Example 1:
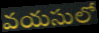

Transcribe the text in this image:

వయసులో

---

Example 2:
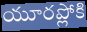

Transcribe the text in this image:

యూరప్లోకి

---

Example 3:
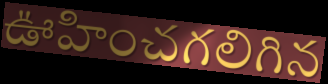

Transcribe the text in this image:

ఊహించగలిగిన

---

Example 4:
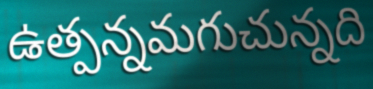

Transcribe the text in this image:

ఉత్పన్నమగుచున్నది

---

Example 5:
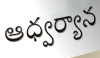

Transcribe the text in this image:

ఆధ్వర్యాన